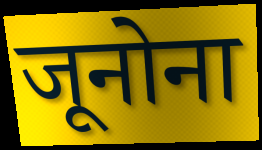
जूनोना